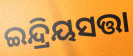
ଇନ୍ଦ୍ରିୟସତ୍ତା